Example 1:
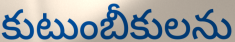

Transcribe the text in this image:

కుటుంబీకులను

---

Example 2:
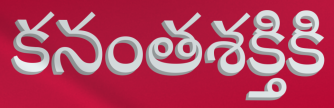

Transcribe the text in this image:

కనంతశక్తికి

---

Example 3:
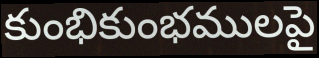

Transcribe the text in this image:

కుంభికుంభములపై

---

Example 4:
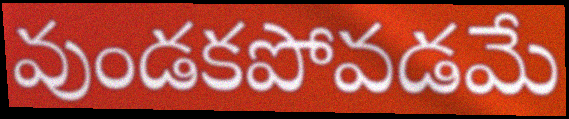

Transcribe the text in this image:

వుండకపోవడమే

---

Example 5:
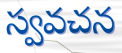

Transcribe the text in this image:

స్వవచన